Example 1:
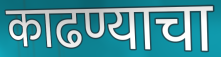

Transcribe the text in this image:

काढण्याचा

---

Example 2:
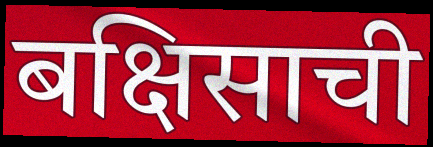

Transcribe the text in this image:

बक्षिसाची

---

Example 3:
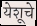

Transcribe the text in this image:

येशूचे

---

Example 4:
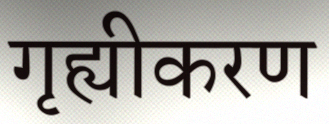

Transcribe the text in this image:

गृह्यीकरण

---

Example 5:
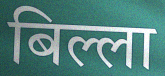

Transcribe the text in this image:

बिल्ला